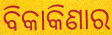
ବିକାକିଣାର